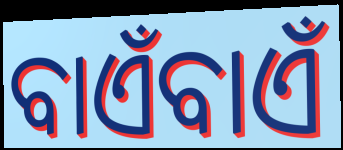
ବାଏଁବାଏଁ